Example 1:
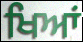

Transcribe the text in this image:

ਖਿਆਂ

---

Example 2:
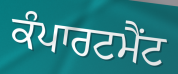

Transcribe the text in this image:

ਕੰਪਾਰਟਮੈਂਟ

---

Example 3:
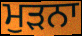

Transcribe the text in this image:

ਮੁਡ਼ਨਾ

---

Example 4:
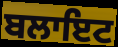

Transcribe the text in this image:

ਬਲਾਇਟ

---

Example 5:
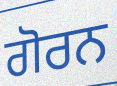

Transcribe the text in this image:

ਗੋਰਨ